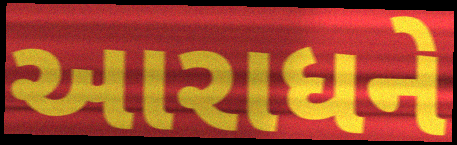
આરાધને